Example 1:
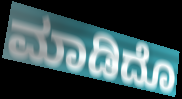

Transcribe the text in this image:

ಮಾಡಿದೊ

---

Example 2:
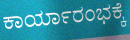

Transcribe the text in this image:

ಕಾರ್ಯಾರಂಭಕ್ಕೆ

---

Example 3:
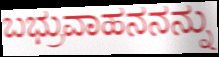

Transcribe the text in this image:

ಬಭ್ರುವಾಹನನನ್ನು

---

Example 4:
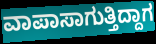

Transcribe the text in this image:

ವಾಪಾಸಾಗುತ್ತಿದ್ದಾಗ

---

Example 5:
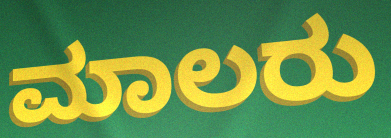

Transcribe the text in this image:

ಮಾಲರು